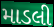
માડલી